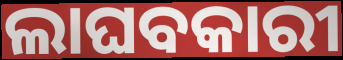
ଲାଘବକାରୀ